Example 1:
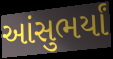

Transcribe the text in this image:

આંસુભર્યાં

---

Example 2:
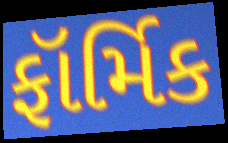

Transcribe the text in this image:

ફૉર્મિક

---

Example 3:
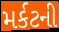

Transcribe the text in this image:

મર્કટની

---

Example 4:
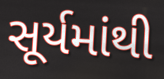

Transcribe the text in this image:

સૂર્યમાંથી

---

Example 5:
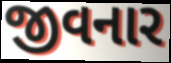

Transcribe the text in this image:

જીવનાર